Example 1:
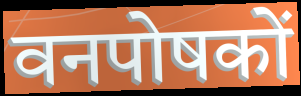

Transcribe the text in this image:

वनपोषकों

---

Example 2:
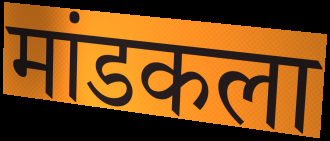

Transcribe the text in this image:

मांडकला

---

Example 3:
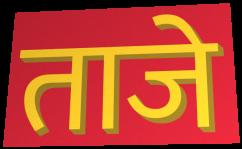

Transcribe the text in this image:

ताजे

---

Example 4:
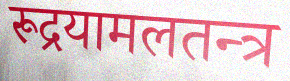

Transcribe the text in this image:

रूद्रयामलतन्त्र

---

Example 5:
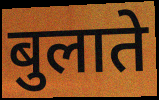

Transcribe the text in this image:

बुलाते